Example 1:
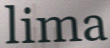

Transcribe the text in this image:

lima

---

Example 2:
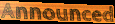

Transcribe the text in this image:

Announced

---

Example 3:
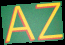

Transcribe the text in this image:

AZ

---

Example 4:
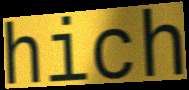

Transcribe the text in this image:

hich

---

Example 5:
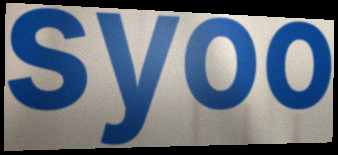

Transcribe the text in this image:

syoo